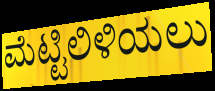
ಮೆಟ್ಟಿಲಿಳಿಯಲು